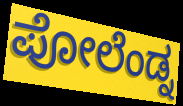
ಪೋಲೆಂಡ್ನ